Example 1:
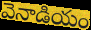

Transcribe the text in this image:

వెనాడియం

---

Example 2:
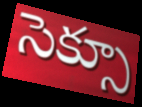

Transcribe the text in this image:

సెక్సూ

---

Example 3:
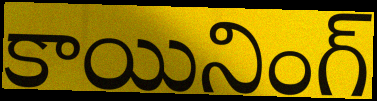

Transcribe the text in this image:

కాయినింగ్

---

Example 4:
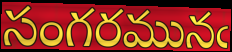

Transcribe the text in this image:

సంగరమునఁ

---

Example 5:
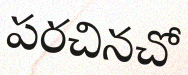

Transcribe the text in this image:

పరచినచో